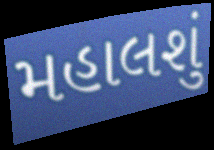
મહાલશું